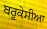
ਬਰੂਕੇਸੀਆ